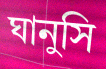
ঘানুসি